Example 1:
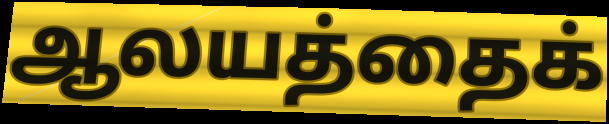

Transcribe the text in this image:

ஆலயத்தைக்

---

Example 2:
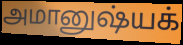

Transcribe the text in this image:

அமானுஷ்யக்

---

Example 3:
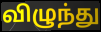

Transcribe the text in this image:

விழுந்து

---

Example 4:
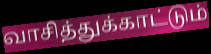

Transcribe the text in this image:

வாசித்துக்காட்டும்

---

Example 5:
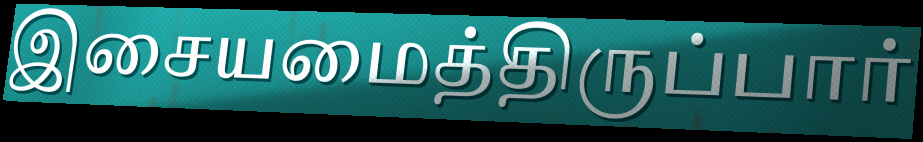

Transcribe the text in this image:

இசையமைத்திருப்பார்